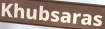
Khubsaras